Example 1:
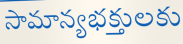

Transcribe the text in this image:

సామాన్యభక్తులకు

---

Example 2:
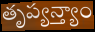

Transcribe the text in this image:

తృప్యన్త్యాం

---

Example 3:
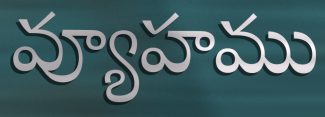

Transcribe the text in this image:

వ్యూహము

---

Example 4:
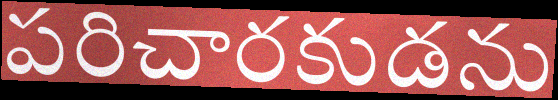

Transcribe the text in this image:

పరిచారకుడను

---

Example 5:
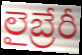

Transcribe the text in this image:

లైబ్రేరీ